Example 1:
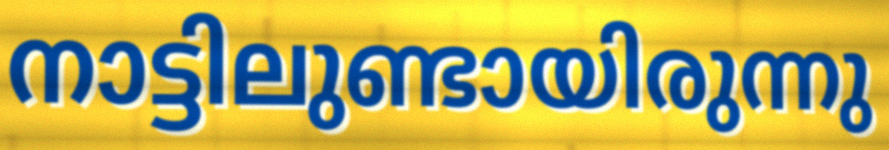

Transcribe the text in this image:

നാട്ടിലുണ്ടായിരുന്നു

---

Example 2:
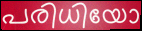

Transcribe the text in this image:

പരിധിയോ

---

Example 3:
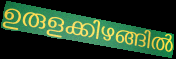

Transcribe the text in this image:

ഉരുളക്കിഴങ്ങിൽ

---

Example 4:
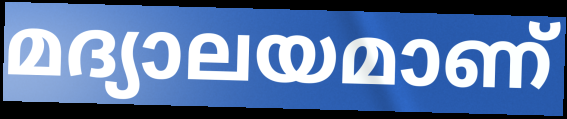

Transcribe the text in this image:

മദ്യാലയമാണ്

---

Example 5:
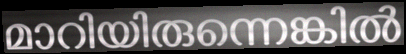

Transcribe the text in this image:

മാറിയിരുന്നെങ്കിൽ